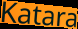
Katara